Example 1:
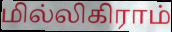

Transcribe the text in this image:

மில்லிகிராம்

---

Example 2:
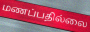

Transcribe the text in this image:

மணப்பதில்லை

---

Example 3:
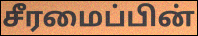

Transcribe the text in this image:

சீரமைப்பின்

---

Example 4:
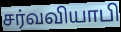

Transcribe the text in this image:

சர்வவியாபி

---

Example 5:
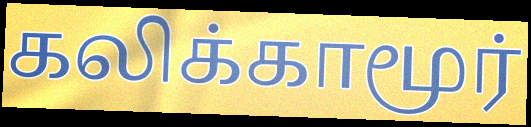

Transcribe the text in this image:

கலிக்காமூர்